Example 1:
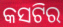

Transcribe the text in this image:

କସଟିର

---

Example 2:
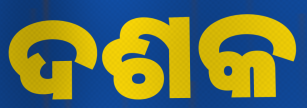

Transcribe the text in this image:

ଦଶକ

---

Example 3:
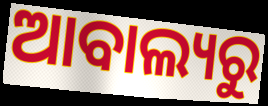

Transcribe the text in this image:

ଆବାଲ୍ୟରୁ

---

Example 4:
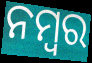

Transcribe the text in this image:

ନମ୍ବର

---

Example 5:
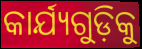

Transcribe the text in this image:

କାର୍ଯ୍ୟଗୁଡ଼ିକୁ